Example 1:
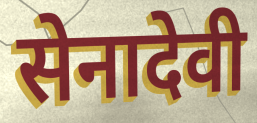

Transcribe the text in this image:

सेनादेवी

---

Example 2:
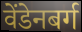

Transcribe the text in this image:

वेंडेनबर्ग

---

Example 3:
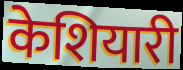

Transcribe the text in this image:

केशियारी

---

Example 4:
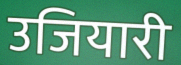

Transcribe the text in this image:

उजियारी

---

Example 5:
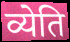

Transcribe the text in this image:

व्येति